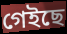
গেইছে